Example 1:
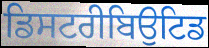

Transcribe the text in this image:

ਡਿਸਟਰੀਬਿਉਟਿਡ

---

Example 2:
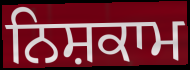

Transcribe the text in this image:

ਨਿਸ਼ਕਾਮ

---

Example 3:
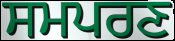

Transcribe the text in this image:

ਸਮਪਰਣ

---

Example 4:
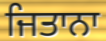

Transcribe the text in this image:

ਜਿਤਾਨਾ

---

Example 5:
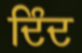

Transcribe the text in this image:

ਦਿੰਦ